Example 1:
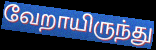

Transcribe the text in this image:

வேறாயிருந்து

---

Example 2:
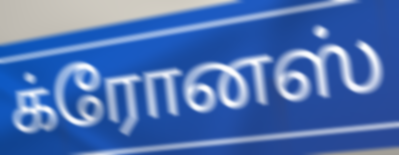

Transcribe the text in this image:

க்ரோனஸ்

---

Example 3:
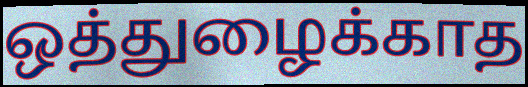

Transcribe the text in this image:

ஒத்துழைக்காத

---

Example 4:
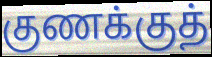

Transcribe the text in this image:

குணக்குத்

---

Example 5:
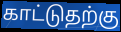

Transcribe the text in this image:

காட்டுதற்கு